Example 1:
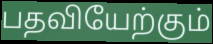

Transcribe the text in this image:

பதவியேற்கும்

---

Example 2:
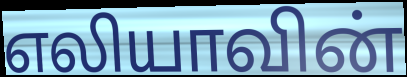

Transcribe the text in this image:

எலியாவின்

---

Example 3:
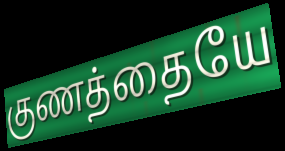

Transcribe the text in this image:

குணத்தையே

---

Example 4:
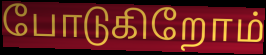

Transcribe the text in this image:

போடுகிறோம்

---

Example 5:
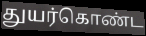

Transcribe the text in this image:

துயர்கொண்ட